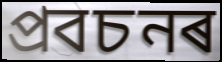
প্ৰবচনৰ